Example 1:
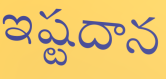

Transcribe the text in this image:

ఇష్టదాన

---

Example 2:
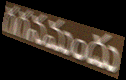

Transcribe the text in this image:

గగనమందు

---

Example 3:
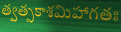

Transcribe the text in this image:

త్వత్సకాశమిహాగతః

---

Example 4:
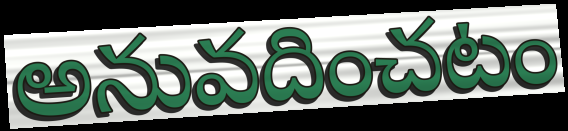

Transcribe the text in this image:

అనువదించటం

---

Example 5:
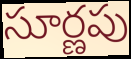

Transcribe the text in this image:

సూర్ణపు